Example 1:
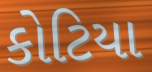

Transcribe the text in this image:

કોટિયા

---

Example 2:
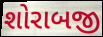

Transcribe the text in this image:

શોરાબજી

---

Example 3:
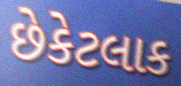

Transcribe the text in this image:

છેકેટલાક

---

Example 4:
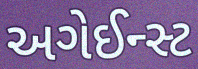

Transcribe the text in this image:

અગેઈન્સ્ટ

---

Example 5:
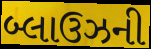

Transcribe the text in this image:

બ્લાઉઝની